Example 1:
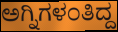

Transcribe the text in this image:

ಅಗ್ನಿಗಳಂತಿದ್ದ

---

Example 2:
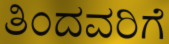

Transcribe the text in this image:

ತಿಂದವರಿಗೆ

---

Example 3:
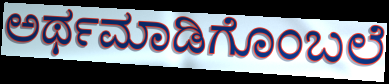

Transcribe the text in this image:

ಅರ್ಥಮಾಡಿಗೊಂಬಲೆ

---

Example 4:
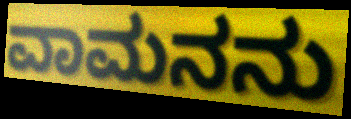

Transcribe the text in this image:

ವಾಮನನು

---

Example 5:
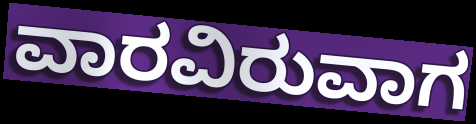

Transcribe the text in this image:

ವಾರವಿರುವಾಗ